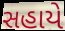
સહાયે